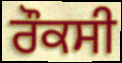
ਰੌਕਸੀ